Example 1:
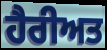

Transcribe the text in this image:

ਹੈਰੀਅਤ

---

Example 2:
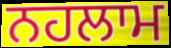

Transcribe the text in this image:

ਨਹਲਾਮ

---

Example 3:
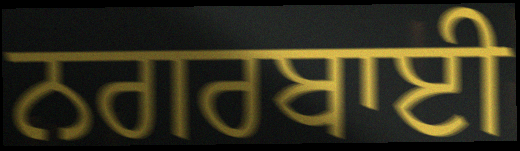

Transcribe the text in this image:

ਨਗਰਬਾਈ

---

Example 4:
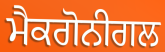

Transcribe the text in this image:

ਮੈਕਗੋਨੀਗਲ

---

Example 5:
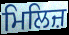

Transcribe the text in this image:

ਮਿਲਿਜ਼